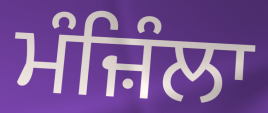
ਮੰਜ਼ਿੰਲਾ